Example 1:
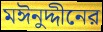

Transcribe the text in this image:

মঈনুদ্দীনের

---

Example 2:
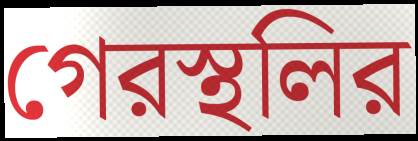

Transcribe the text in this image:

গেরস্থলির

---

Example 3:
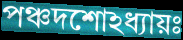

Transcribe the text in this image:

পঞ্চদশোঽধ্যায়ঃ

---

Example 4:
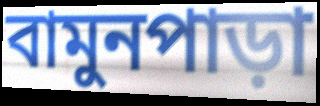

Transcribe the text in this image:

বামুনপাড়া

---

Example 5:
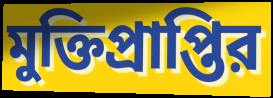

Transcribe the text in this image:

মুক্তিপ্রাপ্তির